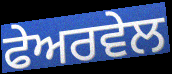
ਫੇਅਰਵੇਲ